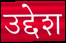
उद्देश